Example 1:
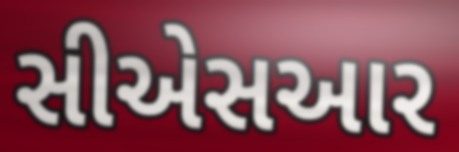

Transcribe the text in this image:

સીએસઆર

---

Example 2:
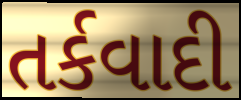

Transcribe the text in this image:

તર્કવાદી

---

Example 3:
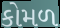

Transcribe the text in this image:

કોમળ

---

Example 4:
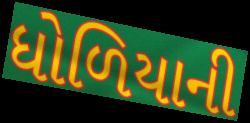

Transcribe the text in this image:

ધોળિયાની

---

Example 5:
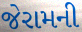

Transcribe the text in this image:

જેરામની